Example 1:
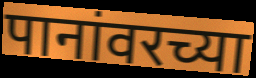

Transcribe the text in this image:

पानांवरच्या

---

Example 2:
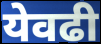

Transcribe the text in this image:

येवढी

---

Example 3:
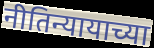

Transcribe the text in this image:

नीतिन्यायाच्या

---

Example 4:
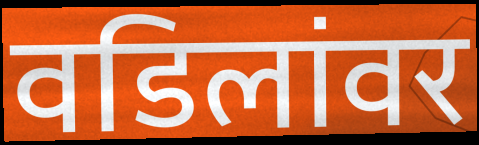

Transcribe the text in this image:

वडिलांवर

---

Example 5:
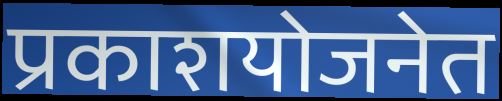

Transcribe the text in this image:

प्रकाशयोजनेत